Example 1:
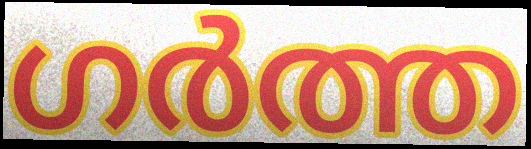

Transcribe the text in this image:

ഗർത്ത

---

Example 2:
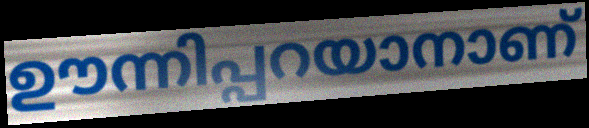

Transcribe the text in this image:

ഊന്നിപ്പറയാനാണ്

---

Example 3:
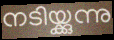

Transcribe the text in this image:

നടിയ്ക്കുന്നു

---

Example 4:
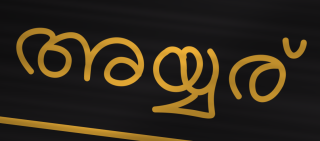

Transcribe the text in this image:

അയ്യര്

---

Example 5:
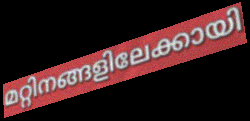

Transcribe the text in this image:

മറ്റിനങ്ങളിലേക്കായി